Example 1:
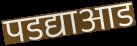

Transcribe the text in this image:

पडद्याआड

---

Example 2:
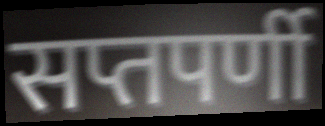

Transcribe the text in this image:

सप्तपर्णी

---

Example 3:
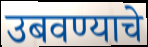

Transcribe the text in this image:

उबवण्याचे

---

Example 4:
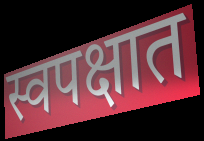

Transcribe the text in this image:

स्वपक्षात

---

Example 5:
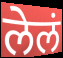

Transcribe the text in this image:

लेलं